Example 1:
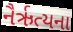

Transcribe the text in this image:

નૈર્ઋત્યના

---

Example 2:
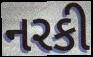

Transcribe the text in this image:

નરકી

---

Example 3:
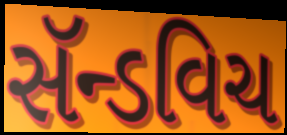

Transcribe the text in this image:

સૅન્ડવિચ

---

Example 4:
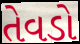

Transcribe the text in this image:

તેવડો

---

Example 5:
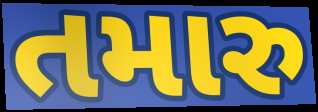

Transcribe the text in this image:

તમારુ